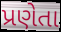
પ્રણેતા